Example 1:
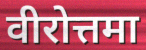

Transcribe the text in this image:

वीरोत्तमा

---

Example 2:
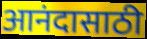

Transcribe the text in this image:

आनंदासाठी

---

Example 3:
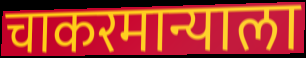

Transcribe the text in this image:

चाकरमान्याला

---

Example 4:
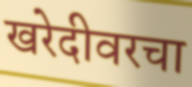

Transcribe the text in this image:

खरेदीवरचा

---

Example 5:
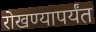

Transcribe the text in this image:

रोखण्यापर्यंत